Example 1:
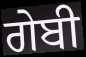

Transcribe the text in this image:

ਗੇਬੀ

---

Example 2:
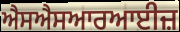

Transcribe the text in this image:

ਐਸਐਸਆਰਆਈਜ਼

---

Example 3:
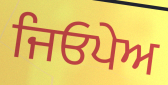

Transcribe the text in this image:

ਜਿਓਪੇਅ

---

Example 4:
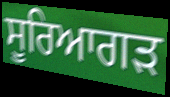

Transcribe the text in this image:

ਸੂਰਿਆਗੜ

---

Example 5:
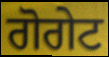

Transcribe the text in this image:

ਗੋਗੇਟ